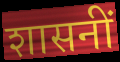
शासनीं